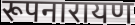
रूपनारायण